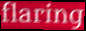
flaring